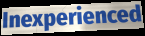
Inexperienced